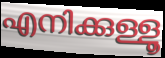
എനിക്കുള്ളൂ